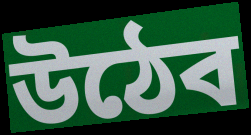
উঠেব